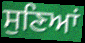
ਸੁਣਿਆਂ